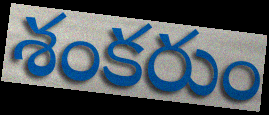
శంకరుం